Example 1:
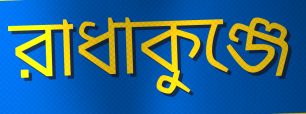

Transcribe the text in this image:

রাধাকুঞ্জে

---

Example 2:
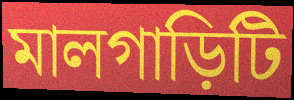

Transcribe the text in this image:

মালগাড়িটি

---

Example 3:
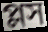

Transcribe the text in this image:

প্লস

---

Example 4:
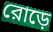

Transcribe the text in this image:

রোড়ে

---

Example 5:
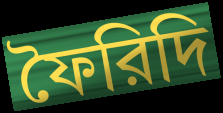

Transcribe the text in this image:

ফৈরিদি